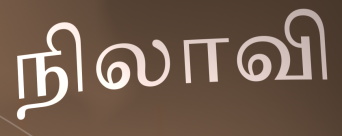
நிலாவி